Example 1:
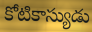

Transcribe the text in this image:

కోటికాస్యుడు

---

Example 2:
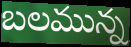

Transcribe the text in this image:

బలమున్న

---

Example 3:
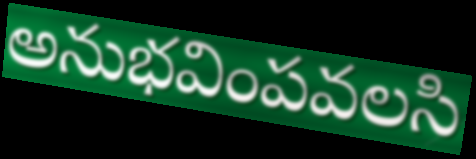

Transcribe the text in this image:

అనుభవింపవలసి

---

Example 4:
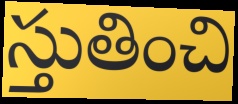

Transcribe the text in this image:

స్తుతించి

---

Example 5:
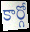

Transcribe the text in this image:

కార్గో